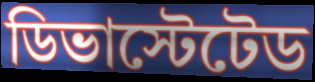
ডিভাস্টেটেড